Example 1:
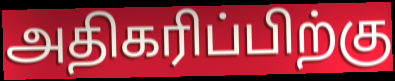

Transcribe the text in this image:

அதிகரிப்பிற்கு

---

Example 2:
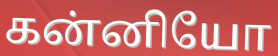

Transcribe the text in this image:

கன்னியோ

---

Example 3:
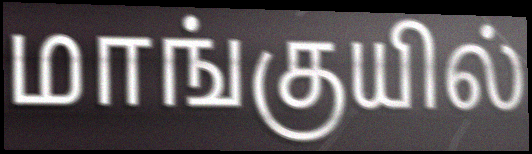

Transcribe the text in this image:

மாங்குயில்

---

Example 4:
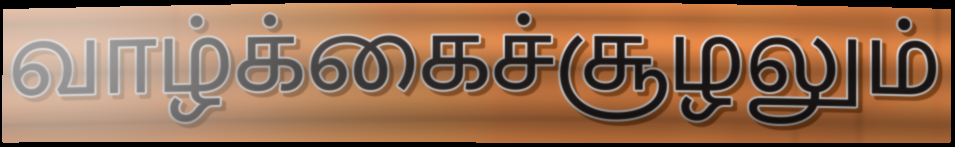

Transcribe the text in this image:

வாழ்க்கைச்சூழலும்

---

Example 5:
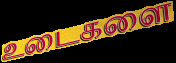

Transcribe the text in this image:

உடைகளை